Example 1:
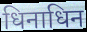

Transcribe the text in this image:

धिनाधिन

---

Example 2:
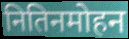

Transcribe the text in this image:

नितिनमोहन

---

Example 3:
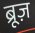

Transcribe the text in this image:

ब्रूज़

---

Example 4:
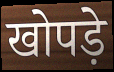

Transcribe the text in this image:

खोपड़े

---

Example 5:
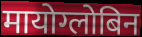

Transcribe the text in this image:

मायोग्लोबिन